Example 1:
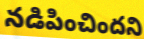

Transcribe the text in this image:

నడిపించిందని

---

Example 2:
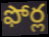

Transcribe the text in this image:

ఫోర్ల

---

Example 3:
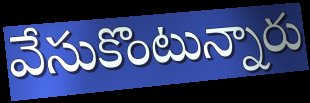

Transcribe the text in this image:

వేసుకొంటున్నారు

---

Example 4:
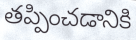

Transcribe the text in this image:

తప్పించడానికి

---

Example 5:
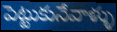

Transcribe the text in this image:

పెట్టుకునేవాళ్ళు